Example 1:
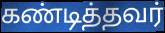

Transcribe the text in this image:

கண்டித்தவர்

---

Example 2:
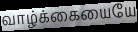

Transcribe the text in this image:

வாழ்க்கையையே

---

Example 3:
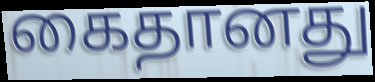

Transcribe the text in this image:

கைதானது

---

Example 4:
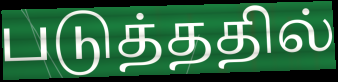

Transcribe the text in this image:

படுத்ததில்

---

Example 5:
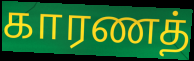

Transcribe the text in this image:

காரணத்